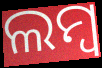
ଲମ୍ବ